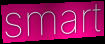
smart